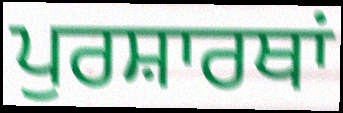
ਪੁਰਸ਼ਾਰਥਾਂ